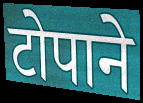
टोपाने